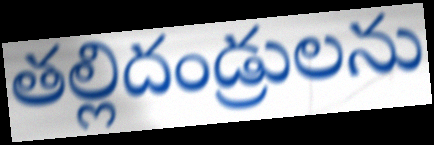
తల్లిదండ్రులను